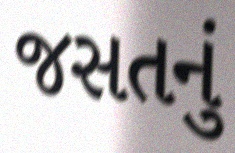
જસતનું